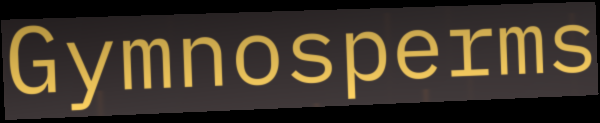
Gymnosperms